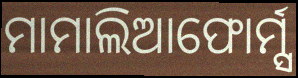
ମାମାଲିଆଫୋର୍ମ୍ସ